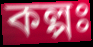
কল্পঃ